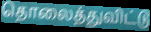
தொலைத்துவிட்டு